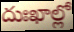
దుఃఖాల్లో